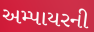
અમ્પાયરની